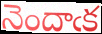
నెందాఁక